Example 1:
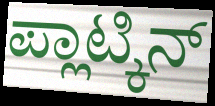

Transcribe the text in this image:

ಪ್ಲಾಟ್ಕಿನ್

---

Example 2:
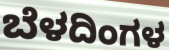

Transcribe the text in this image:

ಬೆಳದಿಂಗಳ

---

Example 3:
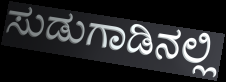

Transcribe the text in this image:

ಸುಡುಗಾಡಿನಲ್ಲಿ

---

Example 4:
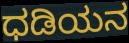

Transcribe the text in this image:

ಧಡಿಯನ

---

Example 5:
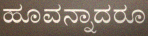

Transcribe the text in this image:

ಹೂವನ್ನಾದರೂ